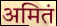
अमितं